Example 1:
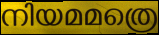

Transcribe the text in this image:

നിയമമത്രെ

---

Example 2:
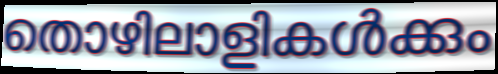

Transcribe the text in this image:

തൊഴിലാളികൾക്കും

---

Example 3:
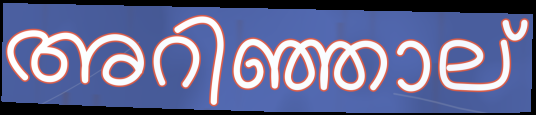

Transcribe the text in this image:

അറിഞ്ഞാല്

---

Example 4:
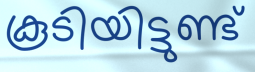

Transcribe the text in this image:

കൂടിയിട്ടുണ്ട്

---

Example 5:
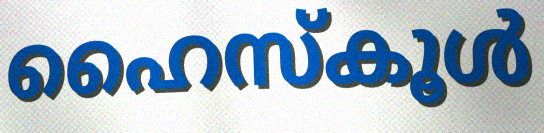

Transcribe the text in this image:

ഹൈസ്കൂൾ